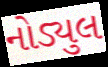
નોડ્યુલ